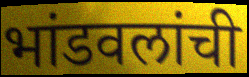
भांडवलांची